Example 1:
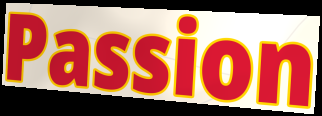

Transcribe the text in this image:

Passion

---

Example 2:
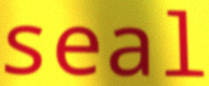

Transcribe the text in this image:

seal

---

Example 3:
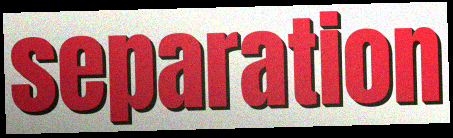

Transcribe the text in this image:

separation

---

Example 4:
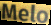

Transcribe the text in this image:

Melo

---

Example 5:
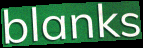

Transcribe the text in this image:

blanks